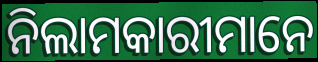
ନିଲାମକାରୀମାନେ